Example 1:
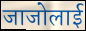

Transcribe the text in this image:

जाजोलाई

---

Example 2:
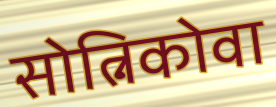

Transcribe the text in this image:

सोत्निकोवा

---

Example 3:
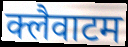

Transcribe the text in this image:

क्लैवाटम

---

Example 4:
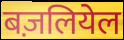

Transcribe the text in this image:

बज़लियेल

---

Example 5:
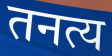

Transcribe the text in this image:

तनत्य